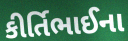
કીર્તિભાઈના